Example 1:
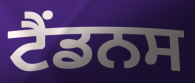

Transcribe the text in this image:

ਟੈਂਡਨਸ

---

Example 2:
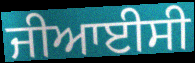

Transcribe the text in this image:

ਜੀਆਈਸੀ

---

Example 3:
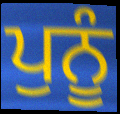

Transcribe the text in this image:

ਪੁਨੂੰ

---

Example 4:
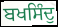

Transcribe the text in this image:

ਬਖਸਿੰਦੁ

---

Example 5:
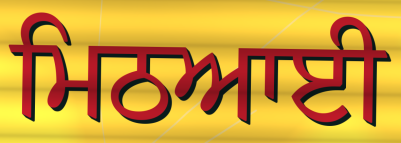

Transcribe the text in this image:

ਮਿਠਆਈ